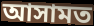
আসামত